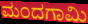
ಮಂದಗಾಮಿ